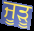
ਜੂੜੂ